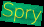
Spry